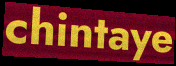
chintaye